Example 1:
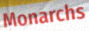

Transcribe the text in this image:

Monarchs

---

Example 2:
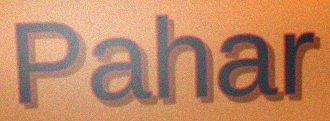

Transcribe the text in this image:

Pahar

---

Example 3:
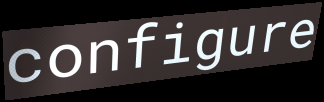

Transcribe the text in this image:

configure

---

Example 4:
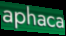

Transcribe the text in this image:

aphaca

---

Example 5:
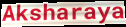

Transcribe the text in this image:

Aksharaya